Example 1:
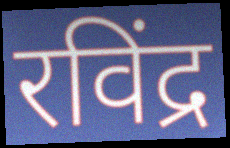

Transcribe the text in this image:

रविंद्र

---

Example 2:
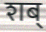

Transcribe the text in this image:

शब्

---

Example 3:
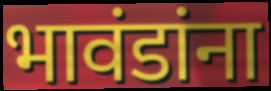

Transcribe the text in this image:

भावंडांना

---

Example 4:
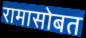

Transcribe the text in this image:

रामासोबत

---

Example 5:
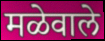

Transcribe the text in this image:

मळेवाले